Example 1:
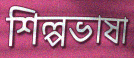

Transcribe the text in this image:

শিল্পভাষা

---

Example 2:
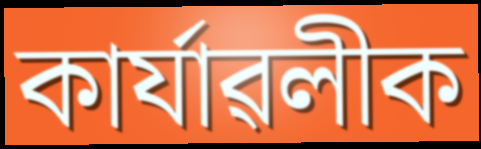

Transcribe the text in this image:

কাৰ্যাৱলীক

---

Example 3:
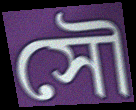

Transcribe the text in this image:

সৌ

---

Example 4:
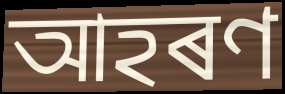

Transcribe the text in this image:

আহৰণ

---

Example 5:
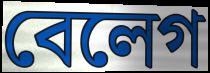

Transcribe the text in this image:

বেলেগ